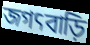
জগৎবাড়ি